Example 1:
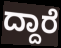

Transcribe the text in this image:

ದ್ದಾರೆ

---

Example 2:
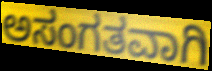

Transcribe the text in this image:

ಅಸಂಗತವಾಗಿ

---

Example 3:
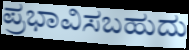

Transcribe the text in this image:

ಪ್ರಭಾವಿಸಬಹುದು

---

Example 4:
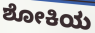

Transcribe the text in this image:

ಶೋಕಿಯ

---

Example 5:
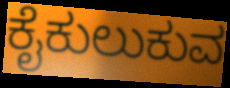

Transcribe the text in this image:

ಕೈಕುಲುಕುವ